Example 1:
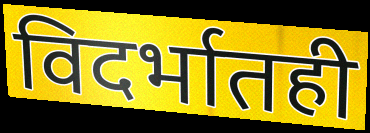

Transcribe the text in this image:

विदर्भातही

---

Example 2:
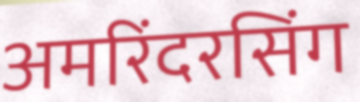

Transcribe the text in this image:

अमरिंदरसिंग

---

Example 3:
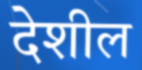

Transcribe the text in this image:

देशील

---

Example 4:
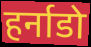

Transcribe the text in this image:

हर्नाडो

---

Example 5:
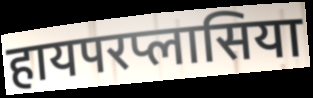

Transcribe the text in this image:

हायपरप्लासिया